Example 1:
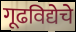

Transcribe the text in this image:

गूढविद्येचे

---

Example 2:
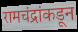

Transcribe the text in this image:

रामचंद्रांकडून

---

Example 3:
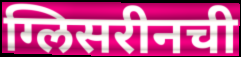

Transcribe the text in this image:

ग्लिसरीनची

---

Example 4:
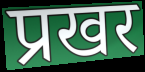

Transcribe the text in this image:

प्रखर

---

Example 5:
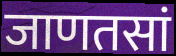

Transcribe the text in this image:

जाणतसां